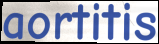
aortitis